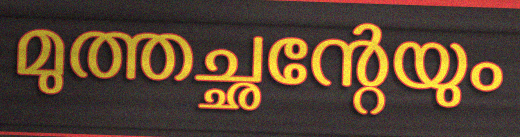
മുത്തച്ഛന്റേയും